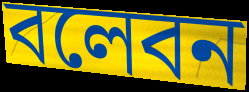
বলেবন